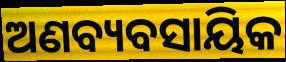
ଅଣବ୍ୟବସାୟିକ